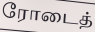
ரோடைத்